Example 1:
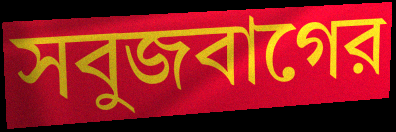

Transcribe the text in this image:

সবুজবাগের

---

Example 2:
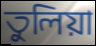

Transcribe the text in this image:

তুলিয়া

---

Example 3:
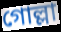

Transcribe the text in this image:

গোল্লা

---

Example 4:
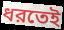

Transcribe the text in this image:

ধরতেই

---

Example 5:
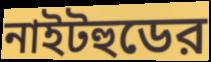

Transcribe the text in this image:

নাইটহুডের